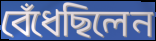
বেঁধেছিলেন